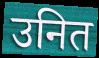
उनित